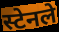
स्टेनले